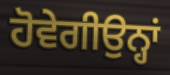
ਹੋਵੇਗੀਉਨ੍ਹਾਂ